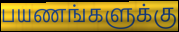
பயணங்களுக்கு